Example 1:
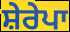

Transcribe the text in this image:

ਸ਼ੇਰੇਪਾ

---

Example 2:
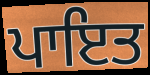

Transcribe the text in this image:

ਪਾਇਤ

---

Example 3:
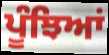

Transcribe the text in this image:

ਪੂੰਝਿਆਂ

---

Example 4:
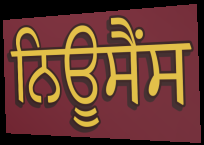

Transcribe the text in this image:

ਨਿਊਸੈਂਸ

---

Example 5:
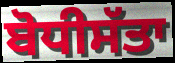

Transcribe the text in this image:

ਬੋਧੀਸੱਤਾ